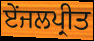
ਏਂਜਲਪ੍ਰੀਤ